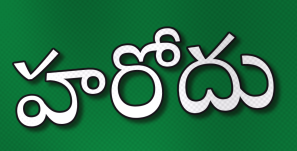
హరోదు